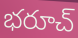
భరూచ్